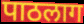
पाठलाग